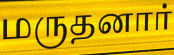
மருதனார்